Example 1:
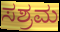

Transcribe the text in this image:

ಸಶ್ರಮ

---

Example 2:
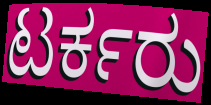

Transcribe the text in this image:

ಟರ್ಕರು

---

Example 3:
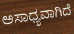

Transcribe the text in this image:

ಅಸಾಧ್ಯವಾಗಿದೆ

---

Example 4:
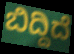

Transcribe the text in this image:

ಬಿದ್ದಿದೆ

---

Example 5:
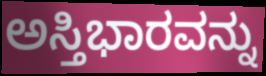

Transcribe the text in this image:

ಅಸ್ತಿಭಾರವನ್ನು